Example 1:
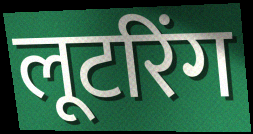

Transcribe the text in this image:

लूटरिंग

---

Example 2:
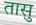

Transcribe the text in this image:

तासु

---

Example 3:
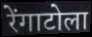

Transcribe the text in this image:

रेंगाटोला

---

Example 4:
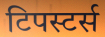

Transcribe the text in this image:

टिपस्टर्स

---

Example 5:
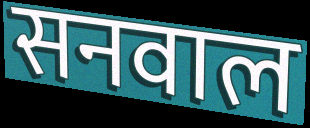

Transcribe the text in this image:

सनवाल